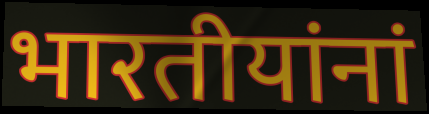
भारतीयांनां